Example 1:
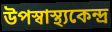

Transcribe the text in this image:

উপস্বাস্থ্যকেন্দ্র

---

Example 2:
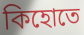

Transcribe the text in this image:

কিহোতে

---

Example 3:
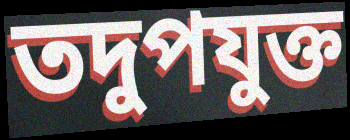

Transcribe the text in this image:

তদুপযুক্ত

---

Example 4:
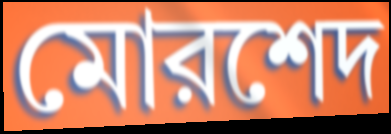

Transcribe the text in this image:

মোরশেদ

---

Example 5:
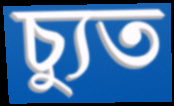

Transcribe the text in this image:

চ্যুত